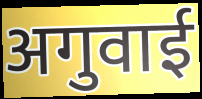
अगुवाई